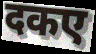
दकए